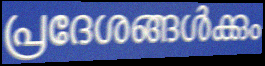
പ്രദേശങ്ങൾക്കും